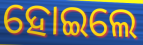
ହୋଇଲେ